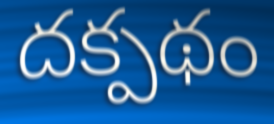
దక్పథం